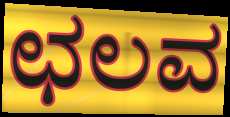
ಛಲವ